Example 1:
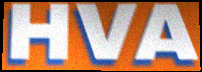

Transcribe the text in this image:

HVA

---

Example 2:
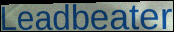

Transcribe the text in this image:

Leadbeater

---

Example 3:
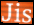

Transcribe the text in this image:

Jis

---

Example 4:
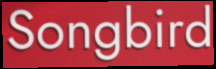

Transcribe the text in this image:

Songbird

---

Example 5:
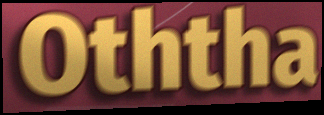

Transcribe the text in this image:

Oththa